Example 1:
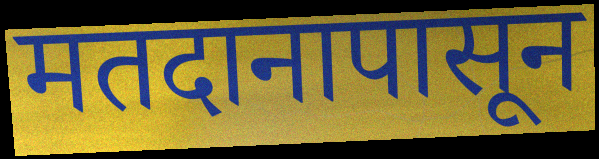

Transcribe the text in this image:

मतदानापासून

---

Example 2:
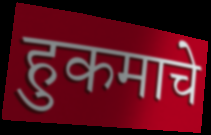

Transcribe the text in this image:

हुकमाचे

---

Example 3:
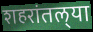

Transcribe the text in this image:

शहरांतल्या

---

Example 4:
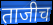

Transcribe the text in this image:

ताजीच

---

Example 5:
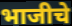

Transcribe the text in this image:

भाजीचे